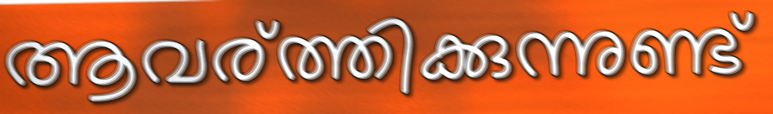
ആവര്ത്തിക്കുന്നുണ്ട്